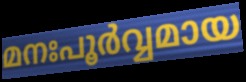
മനഃപൂർവ്വമായ